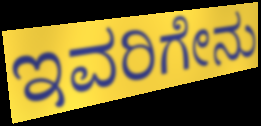
ಇವರಿಗೇನು